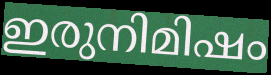
ഇരുനിമിഷം